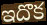
ఇదొక